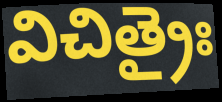
విచిత్రైః